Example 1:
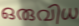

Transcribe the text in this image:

ഒരുവിധ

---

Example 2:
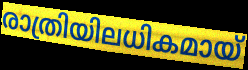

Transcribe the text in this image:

രാത്രിയിലധികമായ്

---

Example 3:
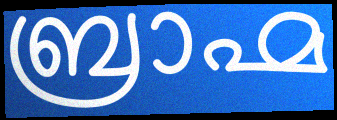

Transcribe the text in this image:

ബ്രാഹ്മ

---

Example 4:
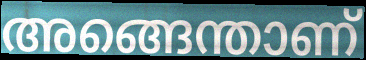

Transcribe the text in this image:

അങ്ങെന്താണ്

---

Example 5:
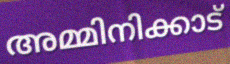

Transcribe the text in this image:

അമ്മിനിക്കാട്